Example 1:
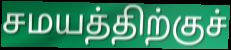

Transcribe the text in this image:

சமயத்திற்குச்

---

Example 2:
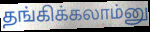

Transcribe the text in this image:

தங்கிக்கலாம்னு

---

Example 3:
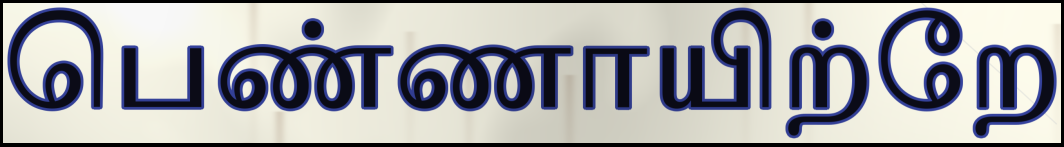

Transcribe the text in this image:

பெண்ணாயிற்றே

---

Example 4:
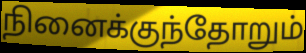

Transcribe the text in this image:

நினைக்குந்தோறும்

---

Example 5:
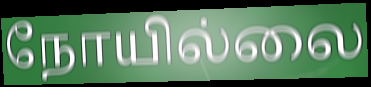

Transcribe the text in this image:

நோயில்லை